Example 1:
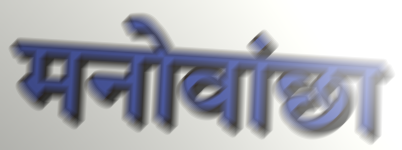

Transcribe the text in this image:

मनोवांछा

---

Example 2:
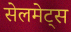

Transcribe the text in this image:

सेलमेट्स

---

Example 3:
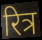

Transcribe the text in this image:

रित्र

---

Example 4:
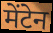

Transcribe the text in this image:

मेंटेन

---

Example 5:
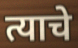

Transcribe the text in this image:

त्याचे